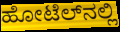
ಹೋಟೆಲ್‌ನಲ್ಲಿ